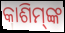
କାଶିମ୍‍ଙ୍କ